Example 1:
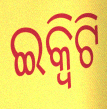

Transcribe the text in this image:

ଇକ୍ବିଟି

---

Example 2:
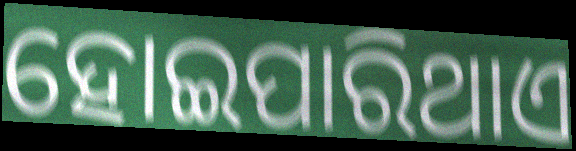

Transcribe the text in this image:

ହୋଇପାରିଥାଏ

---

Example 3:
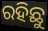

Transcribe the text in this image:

ରହିଛୁ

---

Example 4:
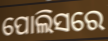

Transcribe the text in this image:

ପୋଲିସରେ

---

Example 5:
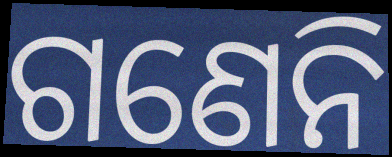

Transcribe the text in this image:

ଗଣେନି